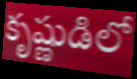
కృష్ణుడిలో